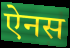
ऐनस